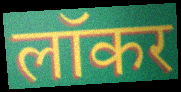
लॉकर